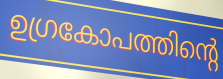
ഉഗ്രകോപത്തിന്റെ